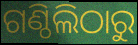
ଗଣ୍ଠିଲିଠାରୁ